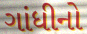
ગાંધીનો